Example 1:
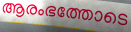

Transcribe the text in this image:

ആരംഭത്തോടെ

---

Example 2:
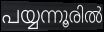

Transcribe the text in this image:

പയ്യന്നൂരിൽ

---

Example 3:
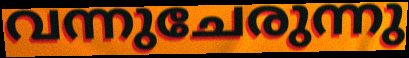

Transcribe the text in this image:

വന്നുചേരുന്നു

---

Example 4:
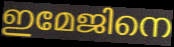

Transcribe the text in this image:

ഇമേജിനെ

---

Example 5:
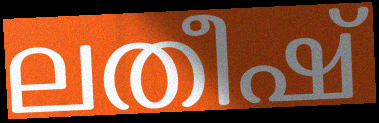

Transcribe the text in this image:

ലതീഷ്